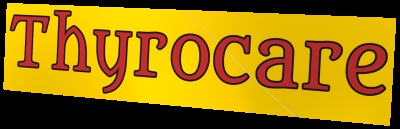
Thyrocare